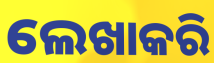
ଲେଖାକରି